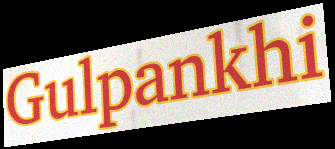
Gulpankhi